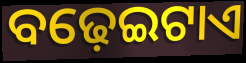
ବଢ଼େଇଟାଏ